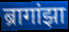
ब्रागांझा